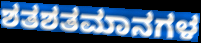
ಶತಶತಮಾನಗಳ